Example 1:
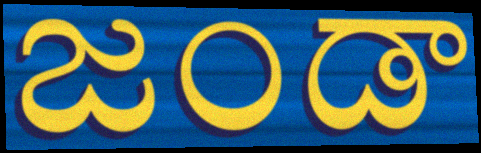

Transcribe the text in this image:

జండా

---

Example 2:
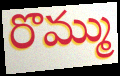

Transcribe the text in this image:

రొమ్ము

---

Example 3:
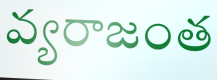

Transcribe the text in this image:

వ్యరాజంత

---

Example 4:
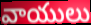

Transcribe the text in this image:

వాయులు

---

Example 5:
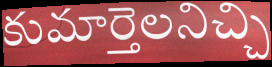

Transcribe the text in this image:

కుమార్తెలనిచ్చి